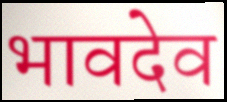
भावदेव